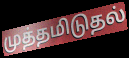
முத்தமிடுதல்